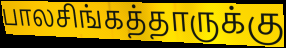
பாலசிங்கத்தாருக்கு